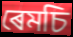
ৰেমচি